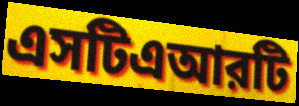
এসটিএআরটি